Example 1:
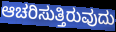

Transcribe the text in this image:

ಆಚರಿಸುತ್ತಿರುವುದು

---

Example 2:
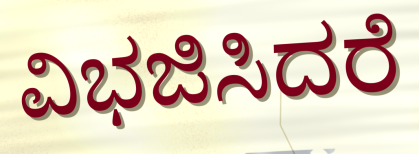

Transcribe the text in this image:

ವಿಭಜಿಸಿದರೆ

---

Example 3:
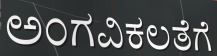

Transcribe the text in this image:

ಅಂಗವಿಕಲತೆಗೆ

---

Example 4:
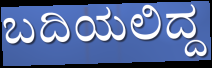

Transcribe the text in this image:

ಬದಿಯಲಿದ್ದ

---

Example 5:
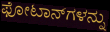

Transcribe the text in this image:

ಫೋಟಾನ್‌ಗಳನ್ನು